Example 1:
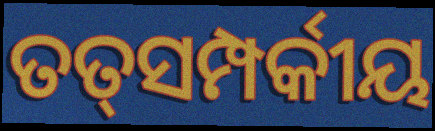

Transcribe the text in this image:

ତତ୍‍ସମ୍ପର୍କୀୟ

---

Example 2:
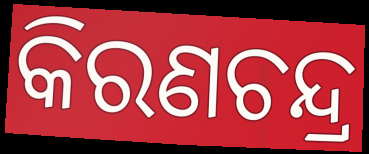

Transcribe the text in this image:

କିରଣଚନ୍ଦ୍ର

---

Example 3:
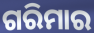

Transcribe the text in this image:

ଗରିମାର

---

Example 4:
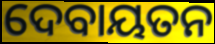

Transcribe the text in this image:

ଦେବାୟତନ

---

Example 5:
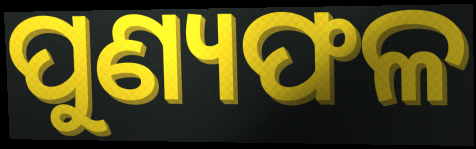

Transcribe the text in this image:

ପୁଣ୍ୟଫଳ